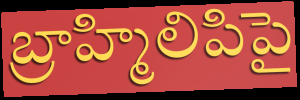
బ్రాహ్మిలిపిపై